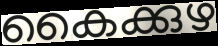
കൈക്കുഴ